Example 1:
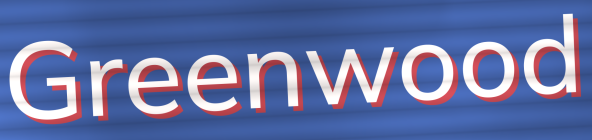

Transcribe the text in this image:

Greenwood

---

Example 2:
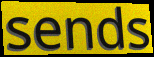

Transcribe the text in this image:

sends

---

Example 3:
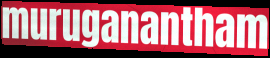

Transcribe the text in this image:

muruganantham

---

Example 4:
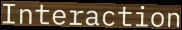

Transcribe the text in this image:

Interaction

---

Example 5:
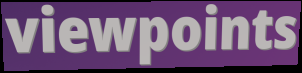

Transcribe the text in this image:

viewpoints